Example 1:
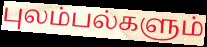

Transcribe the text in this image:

புலம்பல்களும்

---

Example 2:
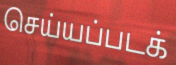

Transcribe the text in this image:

செய்யப்படக்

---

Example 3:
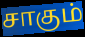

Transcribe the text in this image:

சாகும்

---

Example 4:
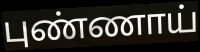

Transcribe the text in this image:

புண்ணாய்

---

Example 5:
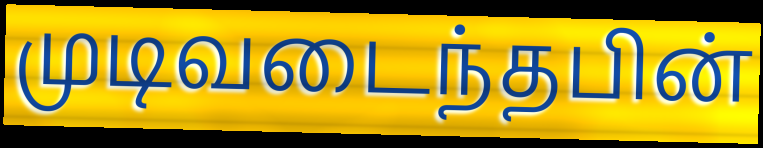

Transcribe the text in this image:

முடிவடைந்தபின்